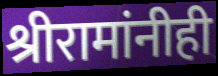
श्रीरामांनीही